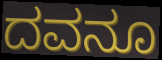
ದವನೂ